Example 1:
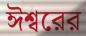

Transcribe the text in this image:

ঈশ্বরের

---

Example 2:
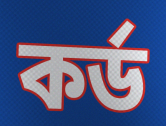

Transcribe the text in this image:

কর্ড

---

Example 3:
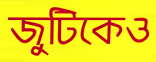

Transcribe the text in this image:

জুটিকেও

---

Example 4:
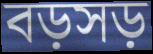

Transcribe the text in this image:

বড়সড়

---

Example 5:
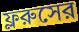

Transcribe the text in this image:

ফ্লরুসের